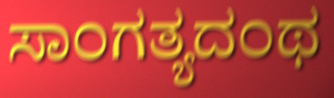
ಸಾಂಗತ್ಯದಂಥ